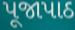
પૂજાપાઠ